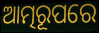
ଆତ୍ମରୂପରେ